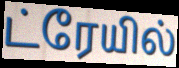
ட்ரேயில்